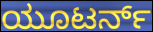
ಯೂಟರ್ನ್